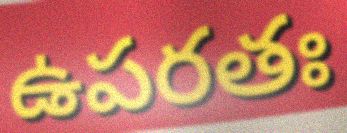
ఉపరతః